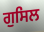
ਗੁਸਿਲ